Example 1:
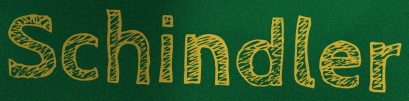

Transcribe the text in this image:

Schindler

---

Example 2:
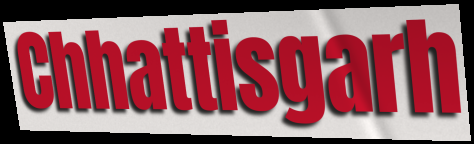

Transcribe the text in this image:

Chhattisgarh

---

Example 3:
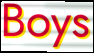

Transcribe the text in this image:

Boys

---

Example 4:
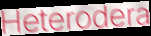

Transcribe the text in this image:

Heterodera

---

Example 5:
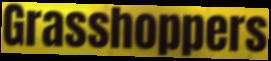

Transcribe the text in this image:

Grasshoppers